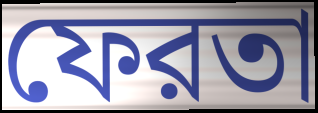
ফেরতা